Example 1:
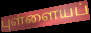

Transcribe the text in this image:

புள்ளையப்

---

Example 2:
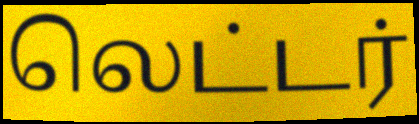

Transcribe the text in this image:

லெட்டர்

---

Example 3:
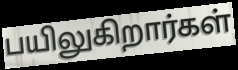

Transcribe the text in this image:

பயிலுகிறார்கள்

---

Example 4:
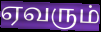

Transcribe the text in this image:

ஏவரும்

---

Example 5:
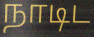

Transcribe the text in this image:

நாடிட